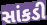
સાંકડી